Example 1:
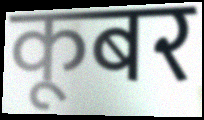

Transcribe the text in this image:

कूबर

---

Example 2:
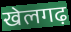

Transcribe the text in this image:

खेलगढ़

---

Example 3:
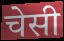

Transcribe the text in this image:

चेसी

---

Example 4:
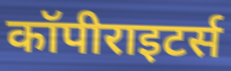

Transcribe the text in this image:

कॉपीराइटर्स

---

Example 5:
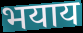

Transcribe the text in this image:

भयाय